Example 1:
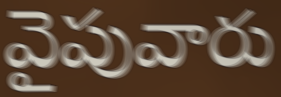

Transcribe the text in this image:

వైపువారు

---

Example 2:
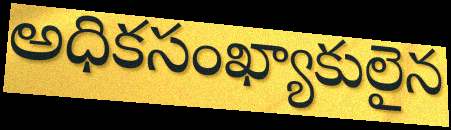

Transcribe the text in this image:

అధికసంఖ్యాకులైన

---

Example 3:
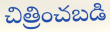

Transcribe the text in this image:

చిత్రించబడి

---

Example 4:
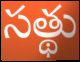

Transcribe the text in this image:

సత్థు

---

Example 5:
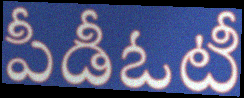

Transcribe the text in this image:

పీడీఓటీ